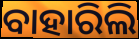
ବାହାରିଲି